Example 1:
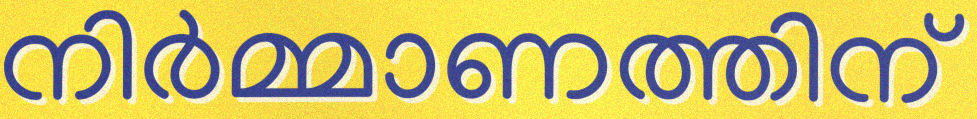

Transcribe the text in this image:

നിർമ്മാണത്തിന്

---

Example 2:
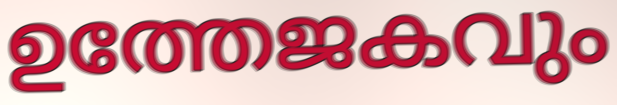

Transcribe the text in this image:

ഉത്തേജകവും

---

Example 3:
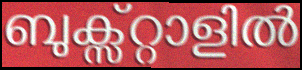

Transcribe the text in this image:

ബുക്സ്റ്റാളിൽ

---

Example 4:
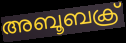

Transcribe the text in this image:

അബൂബക്ര്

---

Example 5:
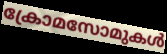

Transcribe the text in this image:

ക്രോമസോമുകൾ